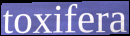
toxifera